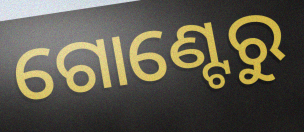
ଗୋଣ୍ଟେରୁ